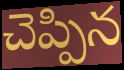
చెప్పిన